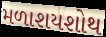
મળાશયશોથ